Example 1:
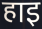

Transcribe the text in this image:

हाइ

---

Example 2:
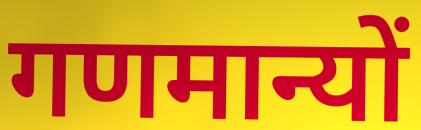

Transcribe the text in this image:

गणमान्यों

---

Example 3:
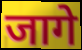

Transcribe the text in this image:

जागे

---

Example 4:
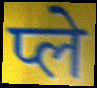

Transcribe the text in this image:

प्ले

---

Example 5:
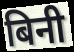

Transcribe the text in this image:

बिनी